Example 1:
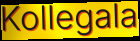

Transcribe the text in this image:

Kollegala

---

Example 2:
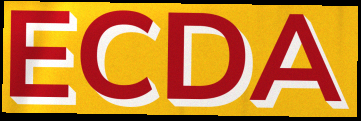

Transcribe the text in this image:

ECDA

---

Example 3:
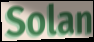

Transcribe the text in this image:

Solan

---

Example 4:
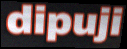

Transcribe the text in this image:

dipuji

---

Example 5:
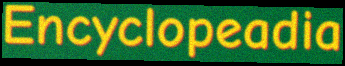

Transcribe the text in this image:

Encyclopeadia